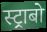
स्ट्राबो